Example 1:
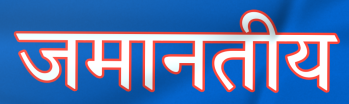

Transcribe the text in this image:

जमानतीय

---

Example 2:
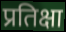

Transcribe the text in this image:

प्रतिक्षा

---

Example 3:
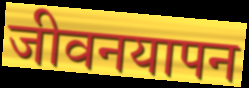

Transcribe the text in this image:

जीवनयापन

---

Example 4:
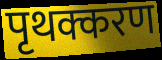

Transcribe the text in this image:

पृथक्करण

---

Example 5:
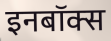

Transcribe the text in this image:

इनबॉक्स